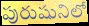
పురుషునిలో